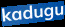
kadugu